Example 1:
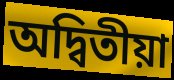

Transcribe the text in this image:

অদ্বিতীয়া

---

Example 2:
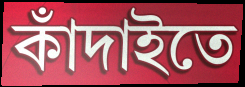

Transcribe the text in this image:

কাঁদাইতে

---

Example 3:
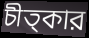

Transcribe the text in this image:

চীত্কার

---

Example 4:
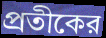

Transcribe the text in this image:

প্রতীকের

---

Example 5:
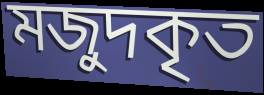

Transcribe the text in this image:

মজুদকৃত